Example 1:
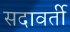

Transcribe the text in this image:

सदावर्ती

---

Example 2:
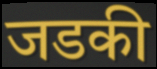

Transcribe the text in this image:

जडकी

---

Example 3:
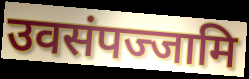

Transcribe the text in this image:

उवसंपज्जामि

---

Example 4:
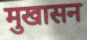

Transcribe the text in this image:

मुखासन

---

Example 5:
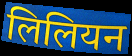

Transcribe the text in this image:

लिलियन